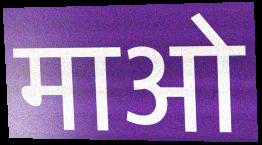
माओ